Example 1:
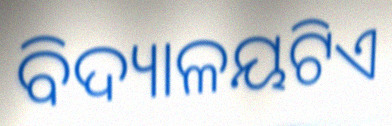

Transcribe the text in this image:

ବିଦ୍ୟାଳୟଟିଏ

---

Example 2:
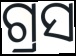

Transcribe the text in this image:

ଗ୍ରସ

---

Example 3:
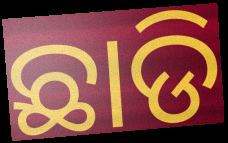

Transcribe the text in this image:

ଛାଡି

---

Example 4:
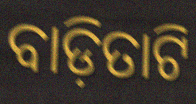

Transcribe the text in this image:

ବାଡ଼ିତାଟି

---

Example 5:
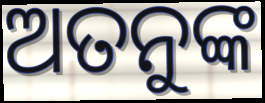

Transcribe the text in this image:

ଅତନୁଙ୍କ